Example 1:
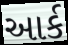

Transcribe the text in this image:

આર્ક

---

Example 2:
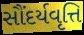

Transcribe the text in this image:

સૌંદર્યવૃત્તિ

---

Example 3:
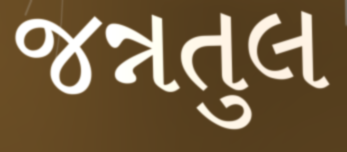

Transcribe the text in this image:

જન્નતુલ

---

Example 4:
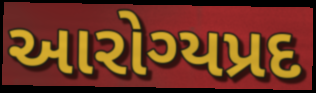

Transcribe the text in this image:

આરોગ્યપ્રદ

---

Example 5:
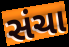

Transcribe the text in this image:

સંચા